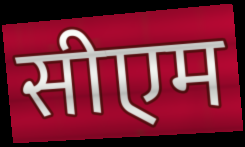
सीएम